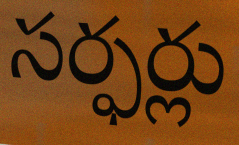
సర్ఫర్లు